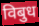
विबुध